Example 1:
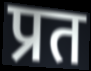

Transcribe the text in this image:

प्रत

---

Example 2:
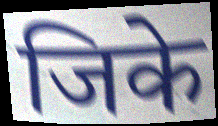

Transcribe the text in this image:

जिके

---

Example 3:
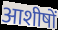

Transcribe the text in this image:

आशीषों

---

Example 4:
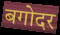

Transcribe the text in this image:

बगोदर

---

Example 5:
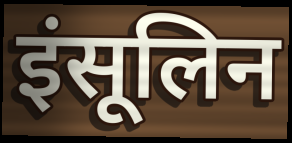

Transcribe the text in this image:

इंसूलिन